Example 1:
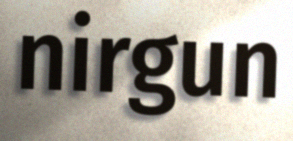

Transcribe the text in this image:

nirgun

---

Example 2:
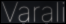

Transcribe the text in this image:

Varali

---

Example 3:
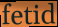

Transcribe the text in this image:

fetid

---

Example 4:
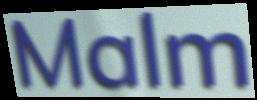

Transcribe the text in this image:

Malm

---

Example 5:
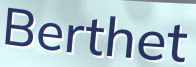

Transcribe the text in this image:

Berthet